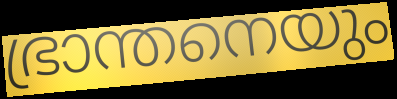
ഭ്രാന്തനെയും